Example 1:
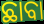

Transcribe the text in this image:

ଛାବା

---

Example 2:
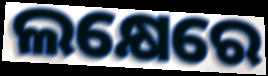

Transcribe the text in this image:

ଲକ୍ଷେରେ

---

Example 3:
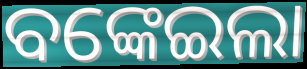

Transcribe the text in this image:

ବଙ୍କେଇଲା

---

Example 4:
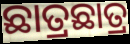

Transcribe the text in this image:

ଛାତ୍ରଛାତ୍ର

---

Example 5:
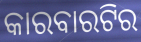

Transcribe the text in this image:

କାରବାରଟିର